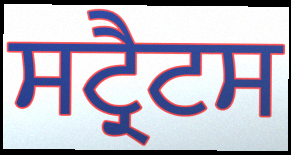
ਸਟ੍ਰੈਟਸ